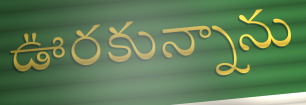
ఊరకున్నాను